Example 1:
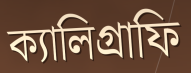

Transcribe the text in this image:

ক্যালিগ্রাফি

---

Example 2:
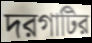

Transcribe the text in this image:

দরগাটির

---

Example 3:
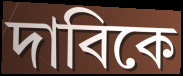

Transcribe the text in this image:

দাবিকে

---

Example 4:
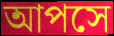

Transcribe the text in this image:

আপসে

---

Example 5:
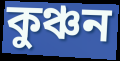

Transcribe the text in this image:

কুঞ্চন